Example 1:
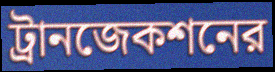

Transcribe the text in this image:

ট্রানজেকশনের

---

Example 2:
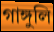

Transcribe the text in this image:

গাঙ্গুলি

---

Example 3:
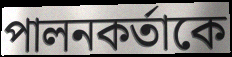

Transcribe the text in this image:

পালনকর্তাকে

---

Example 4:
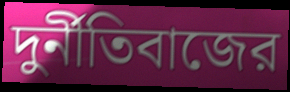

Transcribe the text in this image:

দুর্নীতিবাজের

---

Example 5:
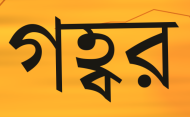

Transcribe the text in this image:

গহ্বর